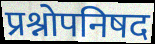
प्रश्नोपनिषद